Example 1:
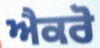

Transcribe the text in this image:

ਐਕਰੋ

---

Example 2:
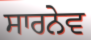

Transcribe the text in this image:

ਸਾਰਨੇਵ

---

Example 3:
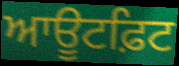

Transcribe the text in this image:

ਆਊਟਫ਼ਿਟ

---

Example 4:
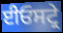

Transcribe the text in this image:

ਈਓਸਟ੍ਰੇ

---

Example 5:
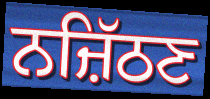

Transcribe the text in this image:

ਨਜ਼ਿੱਠਣ